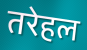
तरेहल